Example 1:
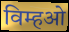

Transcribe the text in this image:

विम्हओ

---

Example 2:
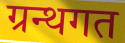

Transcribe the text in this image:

ग्रन्थगत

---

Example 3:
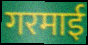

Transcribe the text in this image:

गरमाई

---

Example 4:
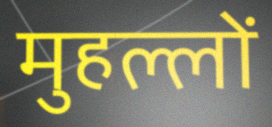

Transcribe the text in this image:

मुहल्लों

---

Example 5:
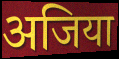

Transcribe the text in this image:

अजिया